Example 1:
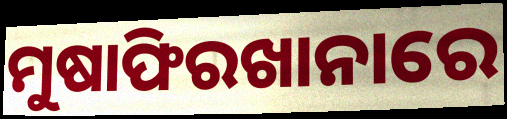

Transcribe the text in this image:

ମୁଷାଫିରଖାନାରେ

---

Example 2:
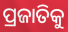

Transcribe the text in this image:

ପ୍ରଜାତିକୁ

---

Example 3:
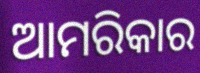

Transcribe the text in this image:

ଆମରିକାର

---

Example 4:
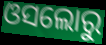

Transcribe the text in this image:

ଓସଲୋରୁ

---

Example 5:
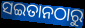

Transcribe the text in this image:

ସଇତାନଠାରୁ